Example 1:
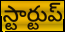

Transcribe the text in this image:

స్టార్టుప్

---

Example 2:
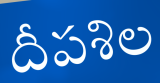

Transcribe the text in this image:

దీపశిల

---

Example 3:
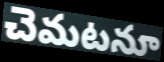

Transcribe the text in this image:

చెమటనూ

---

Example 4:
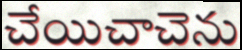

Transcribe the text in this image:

చేయిచాచెను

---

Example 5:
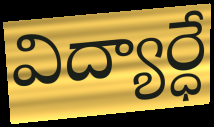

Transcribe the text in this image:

విద్యార్ధే